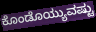
ಕೊಂಡೊಯ್ಯುವಷ್ಟು